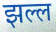
झल्ल